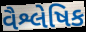
વૈશ્લેષિક